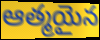
ఆత్మయైన